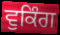
ਵੁਕਿੰਗ